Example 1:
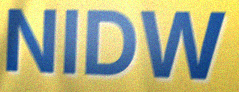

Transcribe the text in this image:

NIDW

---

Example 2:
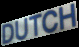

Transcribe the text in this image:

DUTCH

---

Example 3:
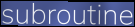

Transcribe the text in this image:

subroutine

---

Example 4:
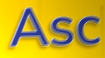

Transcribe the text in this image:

Asc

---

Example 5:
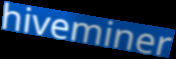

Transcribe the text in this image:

hiveminer